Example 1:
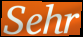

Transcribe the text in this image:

Sehr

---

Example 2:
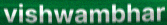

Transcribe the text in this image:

vishwambhar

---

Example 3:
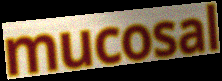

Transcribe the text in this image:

mucosal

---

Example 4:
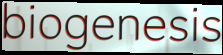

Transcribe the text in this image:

biogenesis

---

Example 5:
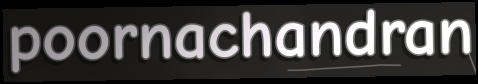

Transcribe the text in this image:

poornachandran